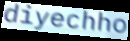
diyechho